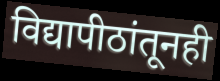
विद्यापीठांतूनही